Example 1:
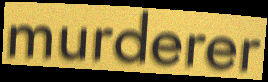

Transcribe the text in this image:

murderer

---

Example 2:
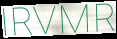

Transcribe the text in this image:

IRVMR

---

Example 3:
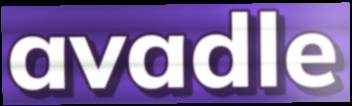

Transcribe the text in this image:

avadle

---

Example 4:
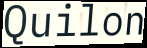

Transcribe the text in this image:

Quilon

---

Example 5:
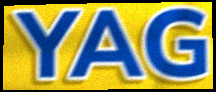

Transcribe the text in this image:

YAG